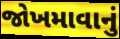
જોખમાવાનું